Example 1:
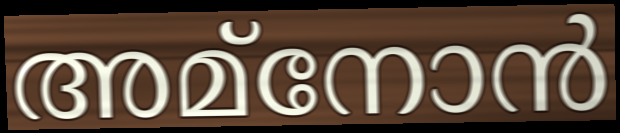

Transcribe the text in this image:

അമ്നോൻ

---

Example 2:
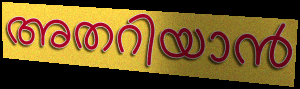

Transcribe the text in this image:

അതറിയാൻ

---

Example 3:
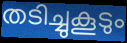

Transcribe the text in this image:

തടിച്ചുകൂടും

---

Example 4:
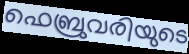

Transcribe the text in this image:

ഫെബ്രുവരിയുടെ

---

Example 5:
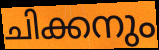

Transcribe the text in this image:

ചിക്കനും